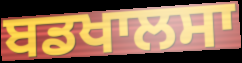
ਬਡਖਾਲਸਾ